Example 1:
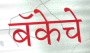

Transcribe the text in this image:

बॅकेचे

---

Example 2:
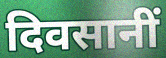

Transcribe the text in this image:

दिवसानीं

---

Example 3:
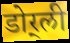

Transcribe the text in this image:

डोर्ली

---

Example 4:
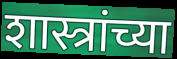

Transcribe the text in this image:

शास्त्रांच्या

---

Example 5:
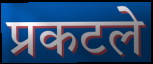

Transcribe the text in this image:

प्रकटले